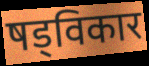
षड्‌विकार